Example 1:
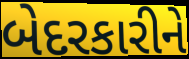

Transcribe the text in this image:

બેદરકારીને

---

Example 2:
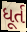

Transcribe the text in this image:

ધૂર્ત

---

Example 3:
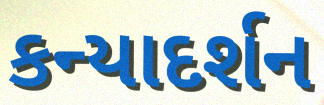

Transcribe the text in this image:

કન્યાદર્શન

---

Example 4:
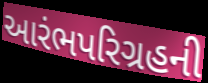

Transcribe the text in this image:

આરંભપરિગ્રહની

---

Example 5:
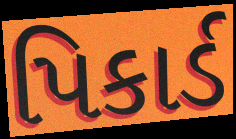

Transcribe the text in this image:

પિકાર્ડ